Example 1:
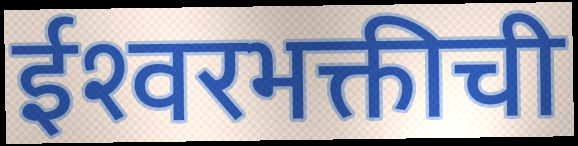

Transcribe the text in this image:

ईश्वरभक्तीची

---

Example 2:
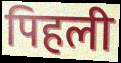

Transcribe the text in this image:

पिहली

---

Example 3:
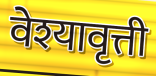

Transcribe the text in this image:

वेश्यावृत्ती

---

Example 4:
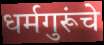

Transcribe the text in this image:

धर्मगुरूंचे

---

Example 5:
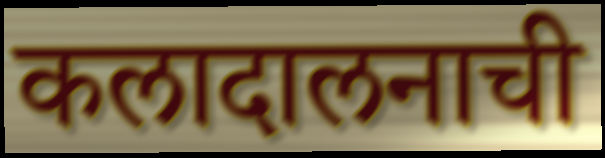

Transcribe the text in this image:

कलादालनाची